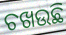
ଚଖଉଛି